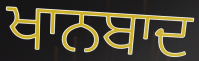
ਖਾਨਬਾਦ